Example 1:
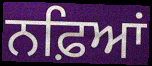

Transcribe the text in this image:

ਨਫ਼ਿਆਂ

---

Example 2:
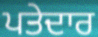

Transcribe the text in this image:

ਪਤੇਦਾਰ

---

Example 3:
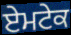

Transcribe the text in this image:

ਏਮਟੇਕ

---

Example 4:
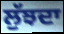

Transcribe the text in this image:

ਲੁੱਝਦਾ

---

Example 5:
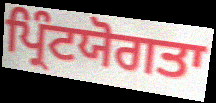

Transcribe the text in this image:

ਪ੍ਰਿੰਟਯੋਗਤਾ